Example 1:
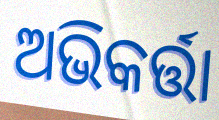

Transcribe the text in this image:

ଅଭିକର୍ତ୍ତା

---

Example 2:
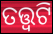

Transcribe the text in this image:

ତତ୍ତ୍ଵଟି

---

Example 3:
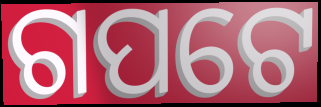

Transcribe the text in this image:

ଗପଟେ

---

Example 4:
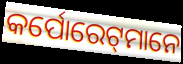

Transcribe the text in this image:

କର୍ପୋରେଟ୍‌ମାନେ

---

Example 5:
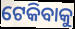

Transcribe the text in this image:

ଟେକିବାକୁ